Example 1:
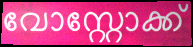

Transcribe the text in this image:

വോസ്റ്റോക്ക്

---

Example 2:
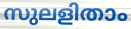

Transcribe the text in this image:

സുലളിതാം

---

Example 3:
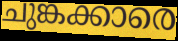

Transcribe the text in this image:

ചുങ്കക്കാരെ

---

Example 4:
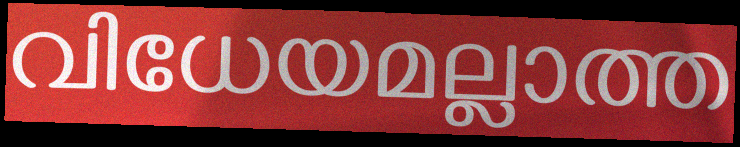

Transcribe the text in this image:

വിധേയമല്ലാത്ത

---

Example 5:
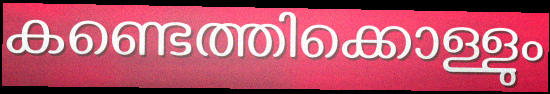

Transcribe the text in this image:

കണ്ടെത്തിക്കൊള്ളും